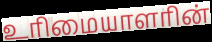
உரிமையாளரின்